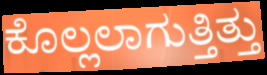
ಕೊಲ್ಲಲಾಗುತ್ತಿತ್ತು